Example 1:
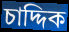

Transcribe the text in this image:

চাদ্দিক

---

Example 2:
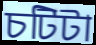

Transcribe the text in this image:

চটিটা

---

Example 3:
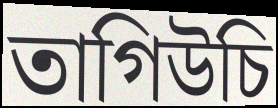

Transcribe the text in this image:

তাগিউচি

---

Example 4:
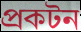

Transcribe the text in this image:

প্রকটন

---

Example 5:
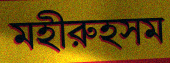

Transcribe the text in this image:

মহীরুহসম